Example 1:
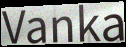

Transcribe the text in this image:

Vanka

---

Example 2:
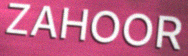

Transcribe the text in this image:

ZAHOOR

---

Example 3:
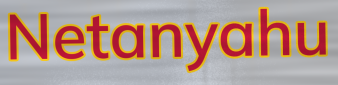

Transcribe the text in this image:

Netanyahu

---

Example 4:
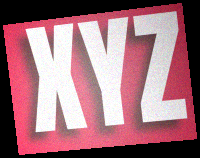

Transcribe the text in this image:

XYZ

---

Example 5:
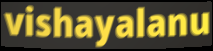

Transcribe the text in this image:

vishayalanu